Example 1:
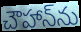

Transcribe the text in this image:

చౌహాన్‌ను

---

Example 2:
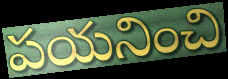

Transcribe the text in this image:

పయనించి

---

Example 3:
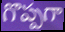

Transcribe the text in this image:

గొప్పగా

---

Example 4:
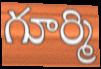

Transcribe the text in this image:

గూర్మి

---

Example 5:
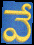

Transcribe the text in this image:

వే